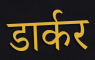
डार्कर